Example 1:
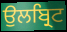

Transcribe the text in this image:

ਉਲਬ੍ਰਿਟ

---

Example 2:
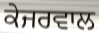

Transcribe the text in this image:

ਕੇਜਰਵਾਲ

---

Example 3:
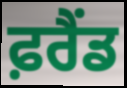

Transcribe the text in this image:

ਫ਼ਰੈਂਡ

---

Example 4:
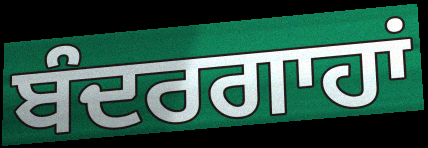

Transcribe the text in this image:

ਬੰਦਰਗਾਹਾਂ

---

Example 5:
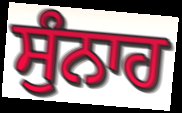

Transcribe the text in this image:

ਸੁੰਨਾਹ